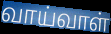
வாய்வாள்